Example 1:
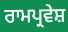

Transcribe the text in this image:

ਰਾਮਪ੍ਰਵੇਸ਼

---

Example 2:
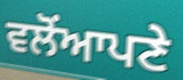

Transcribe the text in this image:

ਵਲੋਂਆਪਣੇ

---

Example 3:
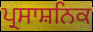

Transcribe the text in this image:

ਪ੍ਰਸਾਸ਼ਨਿਕ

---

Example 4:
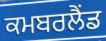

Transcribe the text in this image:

ਕਮਬਰਲੈਂਡ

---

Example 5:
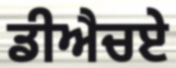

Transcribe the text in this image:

ਡੀਐਚਏ